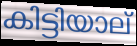
കിട്ടിയാല്